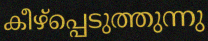
കീഴ്പ്പെടുത്തുന്നു